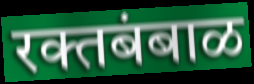
रक्तबंबाळ